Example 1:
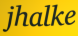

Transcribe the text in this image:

jhalke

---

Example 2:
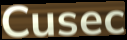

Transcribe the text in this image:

Cusec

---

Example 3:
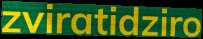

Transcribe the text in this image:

zviratidziro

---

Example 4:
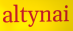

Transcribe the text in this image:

altynai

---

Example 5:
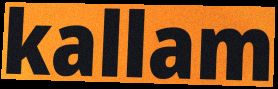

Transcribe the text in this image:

kallam